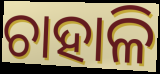
ଚାହାଳି